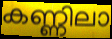
കണ്ണിലാ